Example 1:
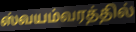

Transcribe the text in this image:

ஸ்வயம்வரத்தில்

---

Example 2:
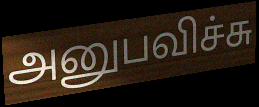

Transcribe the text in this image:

அனுபவிச்சு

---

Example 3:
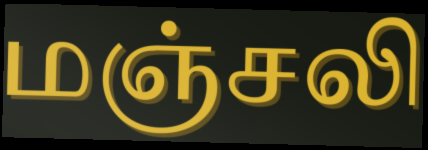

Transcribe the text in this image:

மஞ்சலி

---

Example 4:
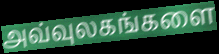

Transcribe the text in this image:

அவ்வுலகங்களை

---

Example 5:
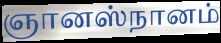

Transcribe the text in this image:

ஞானஸ்நானம்